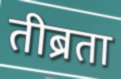
तीब्रता